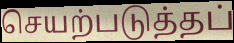
செயற்படுத்தப்